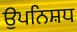
ਉਪਨਿਸ਼ਧ